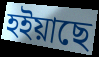
হইয়াছে